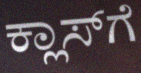
ಕ್ಲಾಸ್‌ಗೆ